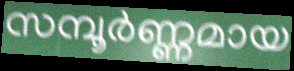
സമ്പൂർണ്ണമായ